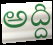
అద్ది